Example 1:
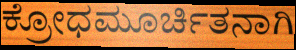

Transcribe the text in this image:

ಕ್ರೋಧಮೂರ್ಚಿತನಾಗಿ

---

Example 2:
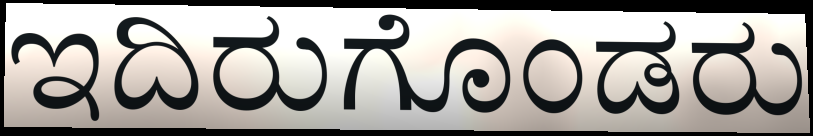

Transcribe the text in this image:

ಇದಿರುಗೊಂಡರು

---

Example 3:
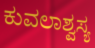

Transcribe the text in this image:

ಕುವಲಾಶ್ವಸ್ಯ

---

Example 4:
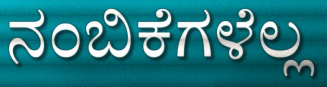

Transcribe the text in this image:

ನಂಬಿಕೆಗಳೆಲ್ಲ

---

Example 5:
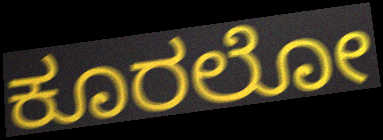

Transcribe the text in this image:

ಕೂರಲೋ